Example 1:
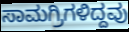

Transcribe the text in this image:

ಸಾಮಗ್ರಿಗಳಿದ್ದವು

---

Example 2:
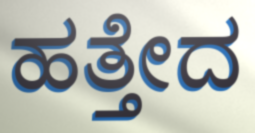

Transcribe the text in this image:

ಹತ್ತೇದ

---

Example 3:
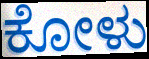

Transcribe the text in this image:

ಕೋಳು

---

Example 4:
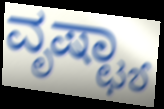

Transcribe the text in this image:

ವೃಷ್ಟ್ಯಾ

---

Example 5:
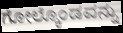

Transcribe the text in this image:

ಗೋಲ್ಕೊಂಡವನ್ನು